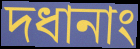
দধানাং